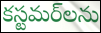
కస్టమర్‌లను